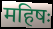
महिषः